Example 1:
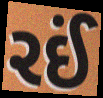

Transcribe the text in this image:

રઈં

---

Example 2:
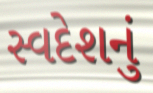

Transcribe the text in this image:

સ્વદેશનું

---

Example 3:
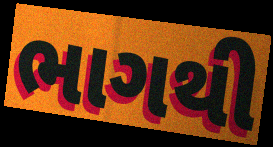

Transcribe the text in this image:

ભાગથી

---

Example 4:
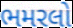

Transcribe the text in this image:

ભમરલો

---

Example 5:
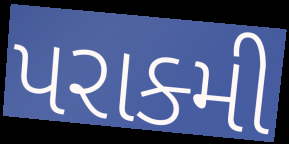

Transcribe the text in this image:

પરાક્મી